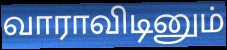
வாராவிடினும்